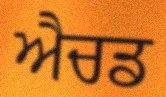
ਐਚਡ